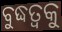
ବୁଦ୍ଧତ୍ଵକୁ